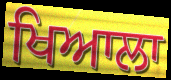
ਖਿਆਲਾ